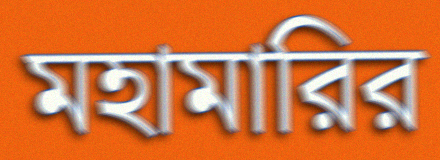
মহামারির